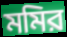
মমির